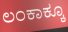
ಲಂಕಾಕ್ಕೂ